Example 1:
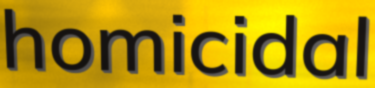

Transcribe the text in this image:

homicidal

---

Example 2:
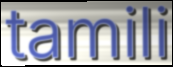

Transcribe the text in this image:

tamili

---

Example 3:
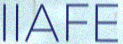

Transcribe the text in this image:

IIAFE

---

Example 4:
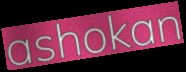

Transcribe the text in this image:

ashokan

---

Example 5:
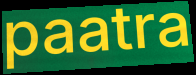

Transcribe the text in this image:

paatra